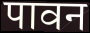
पावन